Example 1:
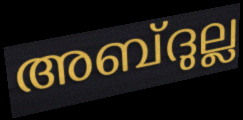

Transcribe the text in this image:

അബ്ദുല്ല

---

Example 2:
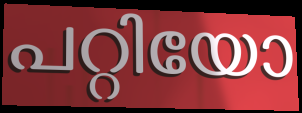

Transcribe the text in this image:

പറ്റിയോ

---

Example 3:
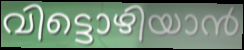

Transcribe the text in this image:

വിട്ടൊഴിയാൻ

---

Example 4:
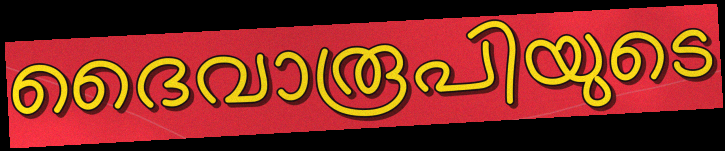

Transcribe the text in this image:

ദൈവാരൂപിയുടെ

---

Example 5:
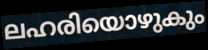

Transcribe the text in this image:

ലഹരിയൊഴുകും